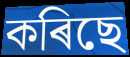
কৰিছে